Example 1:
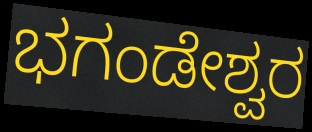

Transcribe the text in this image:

ಭಗಂಡೇಶ್ವರ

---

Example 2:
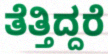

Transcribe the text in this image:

ತೆತ್ತಿದ್ದರೆ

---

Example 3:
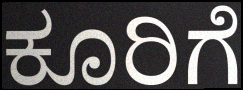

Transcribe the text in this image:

ಕೂರಿಗೆ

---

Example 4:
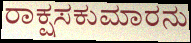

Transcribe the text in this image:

ರಾಕ್ಷಸಕುಮಾರನು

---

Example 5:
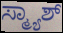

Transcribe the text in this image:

ಸ್ಮ್ಯಾಶ್